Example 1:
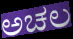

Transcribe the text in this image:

ಅಚಲ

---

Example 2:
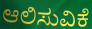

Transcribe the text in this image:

ಆಲಿಸುವಿಕೆ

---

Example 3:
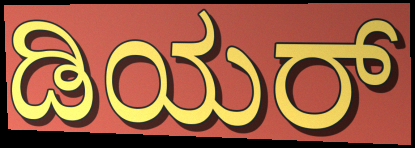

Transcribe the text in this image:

ಡಿಯರ್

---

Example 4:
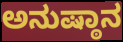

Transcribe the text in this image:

ಅನುಷ್ಠಾನ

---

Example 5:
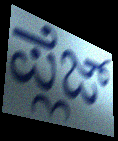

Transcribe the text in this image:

ಪ್ಲೆಜ್